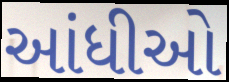
આંધીઓ